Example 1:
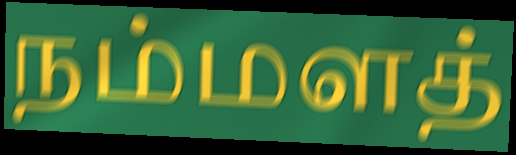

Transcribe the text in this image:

நம்மளத்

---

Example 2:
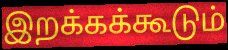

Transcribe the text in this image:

இறக்கக்கூடும்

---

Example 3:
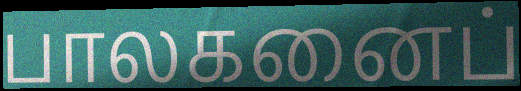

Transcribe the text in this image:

பாலகனைப்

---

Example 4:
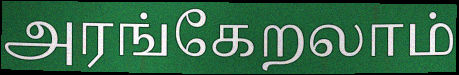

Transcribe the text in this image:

அரங்கேறலாம்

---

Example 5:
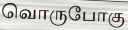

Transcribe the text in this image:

வொருபோகு